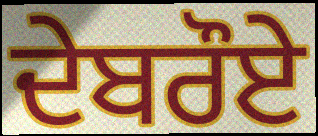
ਦੇਬਰੌਏ